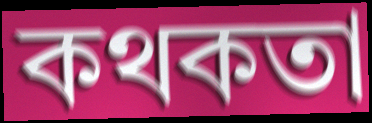
কথকতা